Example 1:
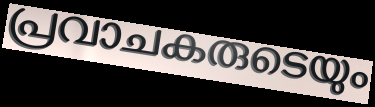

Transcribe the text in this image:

പ്രവാചകരുടെയും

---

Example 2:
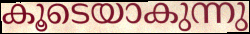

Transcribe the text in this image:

കൂടെയാകുന്നു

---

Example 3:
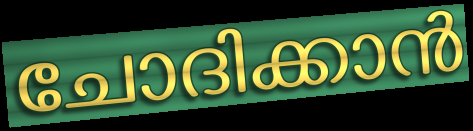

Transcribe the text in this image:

ചോദിക്കാൻ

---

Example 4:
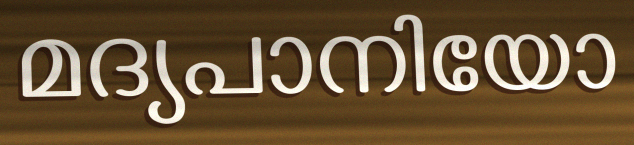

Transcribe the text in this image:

മദ്യപാനിയോ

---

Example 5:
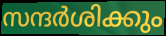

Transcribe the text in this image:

സന്ദർശിക്കും